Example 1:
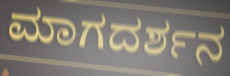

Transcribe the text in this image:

ಮಾಗದರ್ಶನ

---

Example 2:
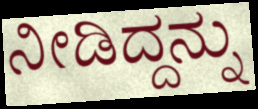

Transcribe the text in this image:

ನೀಡಿದ್ದನ್ನು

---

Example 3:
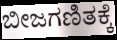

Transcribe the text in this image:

ಬೀಜಗಣಿತಕ್ಕೆ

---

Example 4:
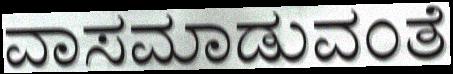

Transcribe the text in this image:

ವಾಸಮಾಡುವಂತೆ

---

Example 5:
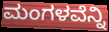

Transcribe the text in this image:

ಮಂಗಳವೆನ್ನಿ